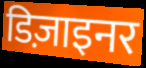
डिज़ाइनर